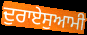
ਦੁਰਾਏਸੁਆਮੀ